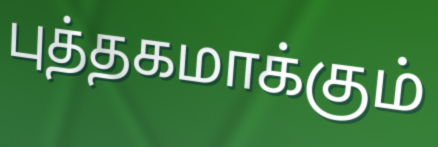
புத்தகமாக்கும்